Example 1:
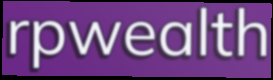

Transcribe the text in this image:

rpwealth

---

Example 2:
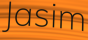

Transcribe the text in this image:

Jasim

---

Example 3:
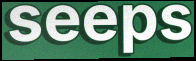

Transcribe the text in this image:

seeps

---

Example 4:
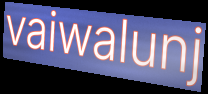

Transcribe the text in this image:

vaiwalunj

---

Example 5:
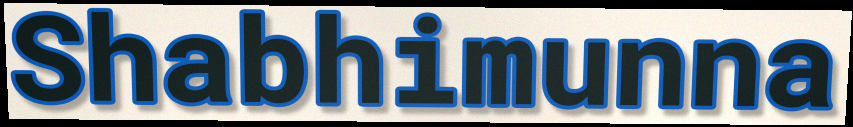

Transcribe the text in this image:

Shabhimunna